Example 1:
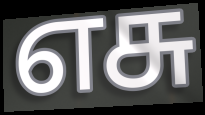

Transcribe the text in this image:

எசு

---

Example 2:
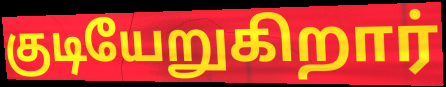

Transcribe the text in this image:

குடியேறுகிறார்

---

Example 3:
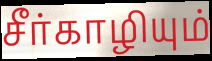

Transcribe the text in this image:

சீர்காழியும்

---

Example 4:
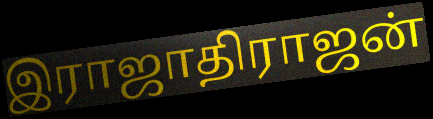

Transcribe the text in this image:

இராஜாதிராஜன்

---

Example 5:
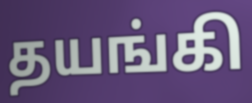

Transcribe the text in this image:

தயங்கி